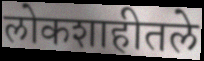
लोकशाहीतले